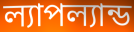
ল্যাপল্যান্ড